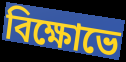
বিক্ষোভে